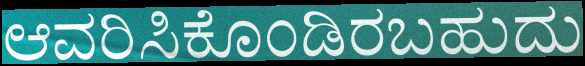
ಆವರಿಸಿಕೊಂಡಿರಬಹುದು